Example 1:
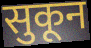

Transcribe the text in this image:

सुकून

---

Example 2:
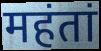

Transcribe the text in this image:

महंतां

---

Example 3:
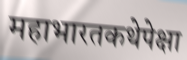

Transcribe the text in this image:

महाभारतकथेपेक्षा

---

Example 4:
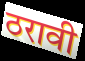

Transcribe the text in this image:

ठरावी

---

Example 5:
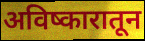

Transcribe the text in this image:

अविष्कारातून